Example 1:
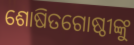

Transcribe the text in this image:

ଶୋଷିତଗୋଷ୍ଠୀଙ୍କୁ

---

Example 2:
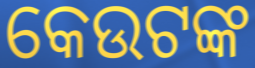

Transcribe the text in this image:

କେଉଟଙ୍କ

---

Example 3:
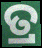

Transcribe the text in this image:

ତ୍ର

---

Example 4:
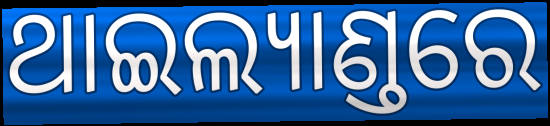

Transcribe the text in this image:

ଥାଇଲ୍ୟାଣ୍ଡରେ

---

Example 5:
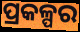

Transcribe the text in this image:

ପ୍ରକଳ୍ପର